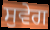
ਸੁਵੇਗ